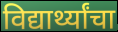
विद्यार्थ्यांचा